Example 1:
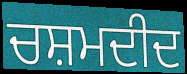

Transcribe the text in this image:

ਚਸ਼ਮਦੀਦ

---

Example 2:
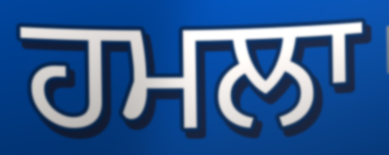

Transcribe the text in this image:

ਹਮਲਾ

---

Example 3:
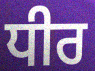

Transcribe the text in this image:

ਧੀਰ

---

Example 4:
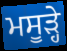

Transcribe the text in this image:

ਮਸੂੜ੍ਹੇ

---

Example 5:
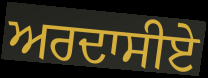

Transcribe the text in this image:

ਅਰਦਾਸੀਏ